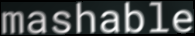
mashable